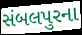
સંબલપુરના